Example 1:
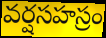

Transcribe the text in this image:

వర్షసహస్రం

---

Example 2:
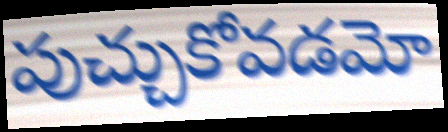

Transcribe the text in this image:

పుచ్చుకోవడమో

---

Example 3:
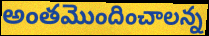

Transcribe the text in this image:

అంతమొందించాలన్న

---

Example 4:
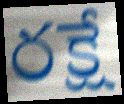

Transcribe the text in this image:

రక్షే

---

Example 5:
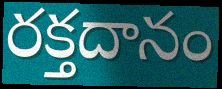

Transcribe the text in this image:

రక్తదానం